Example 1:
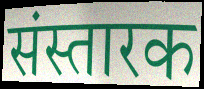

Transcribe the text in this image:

संस्तारक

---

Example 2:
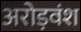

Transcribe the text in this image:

अरोड़वंश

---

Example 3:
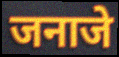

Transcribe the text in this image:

जनाजे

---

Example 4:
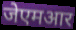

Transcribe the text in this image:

जेएमआर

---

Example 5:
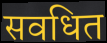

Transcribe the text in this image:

सवधित